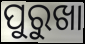
ପୁରୁଖା